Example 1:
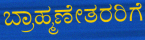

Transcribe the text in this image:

ಬ್ರಾಹ್ಮಣೇತರರಿಗೆ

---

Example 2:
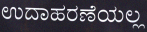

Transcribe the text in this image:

ಉದಾಹರಣೆಯಲ್ಲ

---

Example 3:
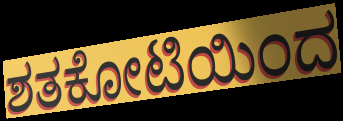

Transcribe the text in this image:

ಶತಕೋಟಿಯಿಂದ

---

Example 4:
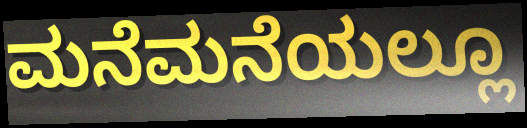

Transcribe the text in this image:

ಮನೆಮನೆಯಲ್ಲೂ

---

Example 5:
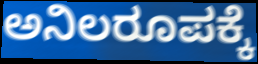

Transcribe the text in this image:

ಅನಿಲರೂಪಕ್ಕೆ